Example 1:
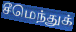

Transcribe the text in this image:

சீமெந்துக்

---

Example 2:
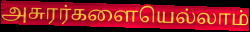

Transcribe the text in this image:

அசுரர்களையெல்லாம்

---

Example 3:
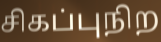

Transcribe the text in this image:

சிகப்புநிற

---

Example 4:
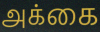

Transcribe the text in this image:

அக்கை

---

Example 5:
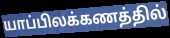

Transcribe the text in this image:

யாப்பிலக்கணத்தில்